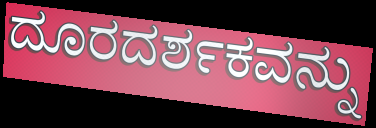
ದೂರದರ್ಶಕವನ್ನು